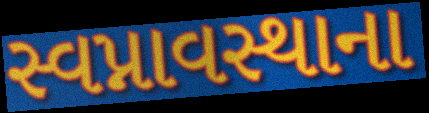
સ્વપ્નાવસ્થાના